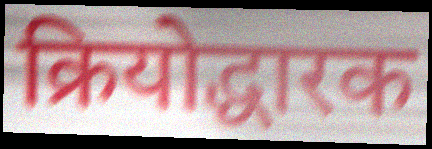
क्रियोद्धारक